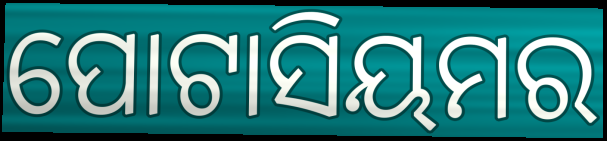
ପୋଟାସିୟମର